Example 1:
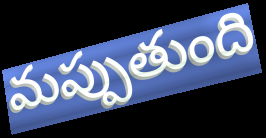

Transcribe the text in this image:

మప్పుతుంది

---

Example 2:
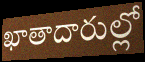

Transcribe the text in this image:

ఖాతాదారుల్లో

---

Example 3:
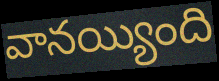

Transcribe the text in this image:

వానయ్యింది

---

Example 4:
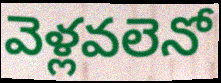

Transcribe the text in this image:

వెళ్లవలెనో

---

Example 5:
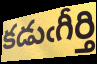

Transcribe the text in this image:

కడుఁగీర్తి